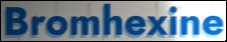
Bromhexine